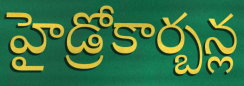
హైడ్రోకార్బన్ల